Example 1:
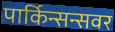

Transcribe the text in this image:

पार्किन्सन्सवर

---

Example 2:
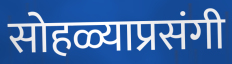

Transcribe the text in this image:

सोहळ्याप्रसंगी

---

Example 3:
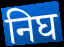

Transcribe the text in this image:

निघ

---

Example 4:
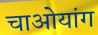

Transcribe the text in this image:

चाओयांग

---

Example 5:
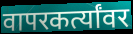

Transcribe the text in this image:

वापरकर्त्यांवर